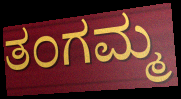
ತಂಗಮ್ಮ